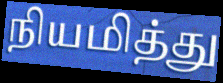
நியமித்து